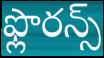
ఫ్లొరన్స్